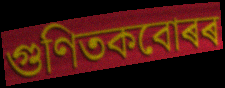
গুণিতকবোৰৰ